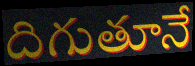
దిగుతూనే